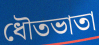
ধৌতভাতা